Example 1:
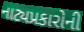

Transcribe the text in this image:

નાટ્યપ્રકારોની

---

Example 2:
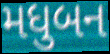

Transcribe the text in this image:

મધુબન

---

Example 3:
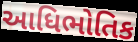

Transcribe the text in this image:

આધિભોતિક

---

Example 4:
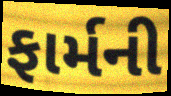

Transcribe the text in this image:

ફાર્મની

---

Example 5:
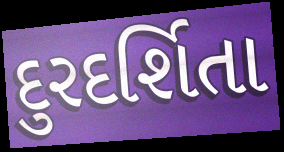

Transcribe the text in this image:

દુરદર્શિતા